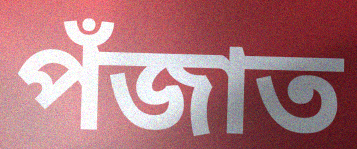
পঁজাত